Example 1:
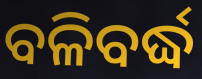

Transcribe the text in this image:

ବଳିବର୍ଦ୍ଧ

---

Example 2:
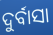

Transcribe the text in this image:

ଦୁର୍ବାସା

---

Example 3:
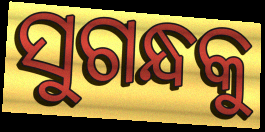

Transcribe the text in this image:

ସୁଗନ୍ଧକୁ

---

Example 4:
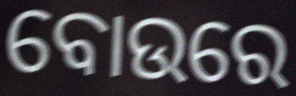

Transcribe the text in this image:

ବୋଉରେ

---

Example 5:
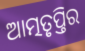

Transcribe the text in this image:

ଆତ୍ମତୃପ୍ତିର